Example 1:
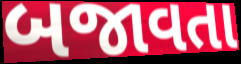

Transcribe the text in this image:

બજાવતા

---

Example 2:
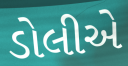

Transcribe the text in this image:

ડોલીએ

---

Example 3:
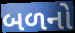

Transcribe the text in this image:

બળનો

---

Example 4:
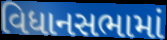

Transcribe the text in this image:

વિધાનસભામાં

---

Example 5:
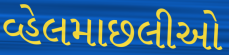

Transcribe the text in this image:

વ્હેલમાછલીઓ